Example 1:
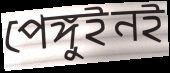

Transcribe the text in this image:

পেঙ্গুইনই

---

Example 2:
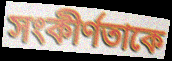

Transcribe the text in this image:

সংকীর্ণতাকে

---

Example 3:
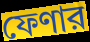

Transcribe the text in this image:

ফেণার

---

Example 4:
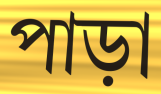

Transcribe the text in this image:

পাড়া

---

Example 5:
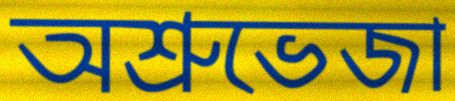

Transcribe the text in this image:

অশ্রুভেজা